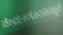
ನೇಮಕಗೊಂಡಿದ್ದಾರೆ